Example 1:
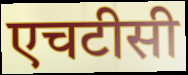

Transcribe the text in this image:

एचटीसी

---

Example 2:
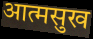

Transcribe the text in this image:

आत्मसुख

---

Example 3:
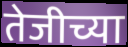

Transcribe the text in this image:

तेजीच्या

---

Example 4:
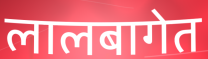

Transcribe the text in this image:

लालबागेत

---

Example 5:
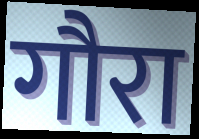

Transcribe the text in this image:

गौरा